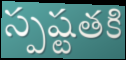
స్పష్టతకి